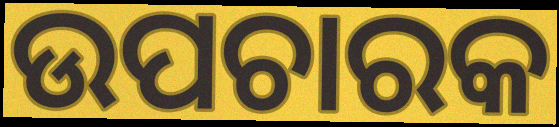
ଉପଚାରକ